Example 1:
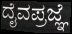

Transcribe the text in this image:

ದೈವಪ್ರಜ್ಞೆ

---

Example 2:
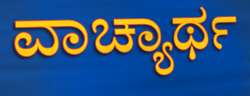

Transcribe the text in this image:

ವಾಚ್ಯಾರ್ಥ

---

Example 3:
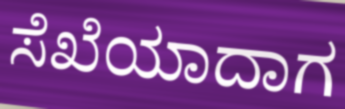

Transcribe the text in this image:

ಸೆಖೆಯಾದಾಗ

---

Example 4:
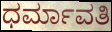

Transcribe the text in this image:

ಧರ್ಮಾವತಿ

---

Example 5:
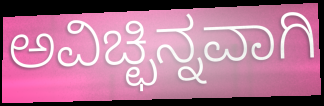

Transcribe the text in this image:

ಅವಿಚ್ಛಿನ್ನವಾಗಿ